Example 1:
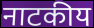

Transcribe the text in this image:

नाटकीय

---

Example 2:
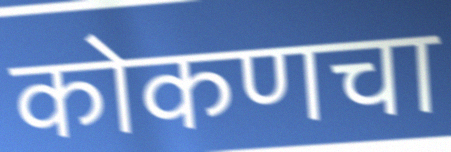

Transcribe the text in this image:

कोकणचा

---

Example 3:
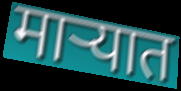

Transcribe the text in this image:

माऱ्यात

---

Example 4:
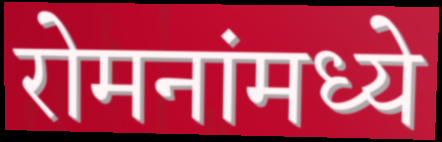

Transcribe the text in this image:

रोमनांमध्ये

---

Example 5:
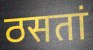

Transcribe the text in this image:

ठसतां